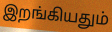
இறங்கியதும்